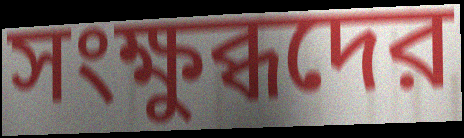
সংক্ষুব্ধদের